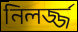
নিলর্জ্জ